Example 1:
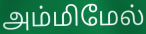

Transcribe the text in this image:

அம்மிமேல்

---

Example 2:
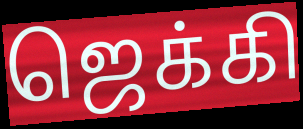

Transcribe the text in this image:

ஜெக்கி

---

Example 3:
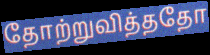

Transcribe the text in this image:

தோற்றுவித்ததோ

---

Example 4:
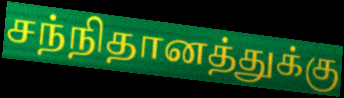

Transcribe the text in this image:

சந்நிதானத்துக்கு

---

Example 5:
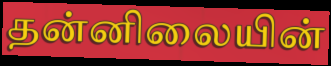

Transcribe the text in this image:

தன்னிலையின்